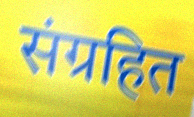
संग्रहित